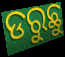
ଡରୁଛୁ